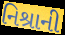
નિશ્રાની